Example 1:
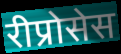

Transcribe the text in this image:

रीप्रोसेस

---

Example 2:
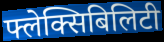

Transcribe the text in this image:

फ्लेक्सिबिलिटी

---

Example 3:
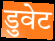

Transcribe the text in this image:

डुवेट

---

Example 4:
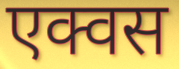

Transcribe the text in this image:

एक्वस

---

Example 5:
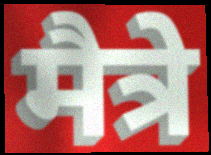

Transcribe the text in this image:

मैत्रे